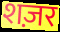
शज़र